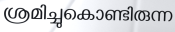
ശ്രമിച്ചുകൊണ്ടിരുന്ന